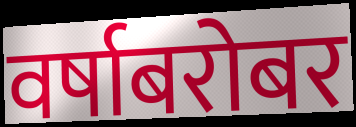
वर्षाबरोबर